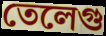
তেলেগু